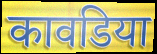
कावडिया